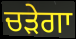
ਚੜੇਗਾ